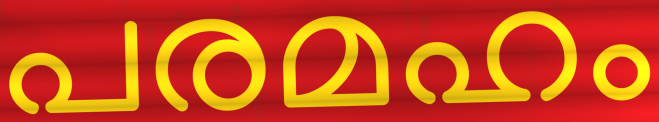
പരമഹം